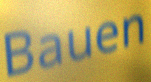
Bauen